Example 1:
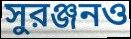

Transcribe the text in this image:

সুরঞ্জনও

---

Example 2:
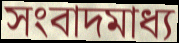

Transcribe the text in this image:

সংবাদমাধ্য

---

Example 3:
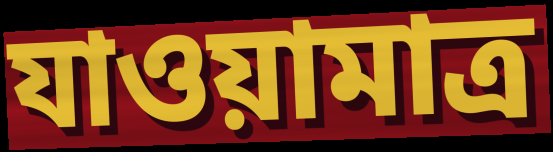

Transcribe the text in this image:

যাওয়ামাত্র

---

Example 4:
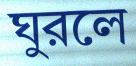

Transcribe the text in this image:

ঘুরলে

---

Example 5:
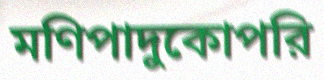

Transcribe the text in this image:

মণিপাদুকোপরি